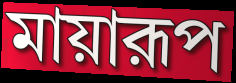
মায়ারূপ